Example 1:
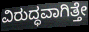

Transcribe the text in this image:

ವಿರುದ್ಧವಾಗಿತ್ತೇ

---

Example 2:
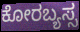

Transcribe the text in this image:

ಕೋರಬ್ಯಸ್ಸ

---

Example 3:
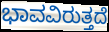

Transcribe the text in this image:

ಭಾವವಿರುತ್ತದೆ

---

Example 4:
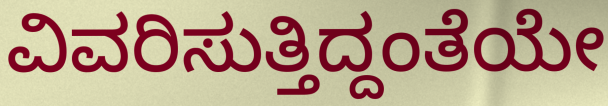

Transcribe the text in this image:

ವಿವರಿಸುತ್ತಿದ್ದಂತೆಯೇ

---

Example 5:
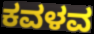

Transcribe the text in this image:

ಕವಳವ